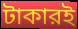
টাকারই